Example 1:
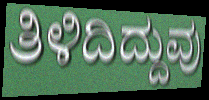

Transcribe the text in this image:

ತಿಳಿದಿದ್ದುವು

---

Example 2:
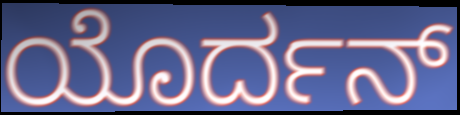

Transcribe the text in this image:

ಯೊರ್ದನ್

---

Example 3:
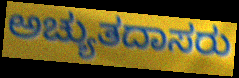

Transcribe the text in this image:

ಅಚ್ಯುತದಾಸರು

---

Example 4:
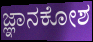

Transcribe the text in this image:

ಜ್ಞಾನಕೋಶ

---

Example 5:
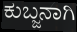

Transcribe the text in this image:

ಕುಬ್ಜನಾಗಿ